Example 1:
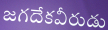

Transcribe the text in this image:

జగదేకవీరుడు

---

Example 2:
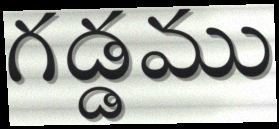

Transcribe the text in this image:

గడ్డము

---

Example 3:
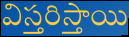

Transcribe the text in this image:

విస్తరిస్తాయి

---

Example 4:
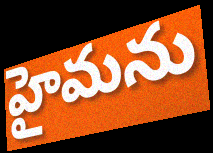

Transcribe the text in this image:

హైమను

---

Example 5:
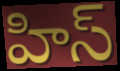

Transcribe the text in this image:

హిస్